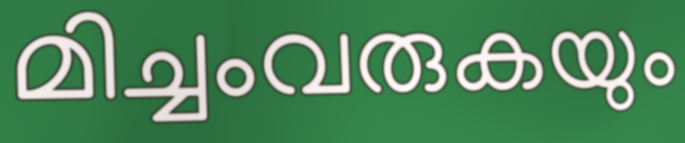
മിച്ചംവരുകയും